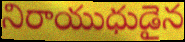
నిరాయుధుడైన